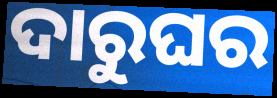
ଦାରୁଘର